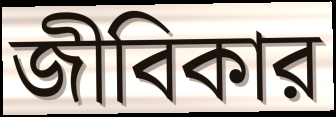
জীবিকার